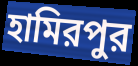
হামিরপুর